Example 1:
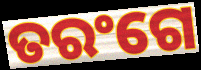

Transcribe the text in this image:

ତରଂଗେ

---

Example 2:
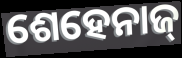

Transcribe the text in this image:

ଶେହେନାଜ୍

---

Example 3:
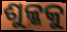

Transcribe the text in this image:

ଶୁଳ୍କକୁ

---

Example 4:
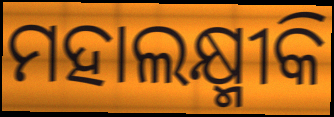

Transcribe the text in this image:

ମହାଲକ୍ଷ୍ମୀକି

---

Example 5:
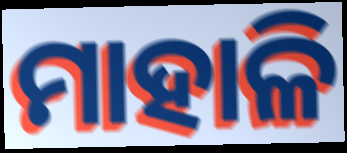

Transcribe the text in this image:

ମାହାଳି